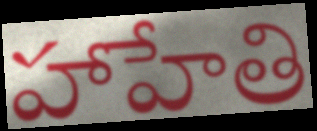
హాహేతి